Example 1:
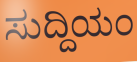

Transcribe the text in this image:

ಸುದ್ದಿಯಂ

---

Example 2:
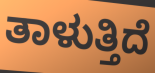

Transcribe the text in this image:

ತಾಳುತ್ತಿದೆ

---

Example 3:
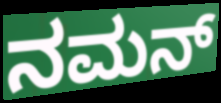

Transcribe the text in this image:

ನಮನ್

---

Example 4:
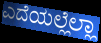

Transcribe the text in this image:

ಎದೆಯಲ್ಲೆಲ್ಲಾ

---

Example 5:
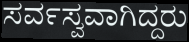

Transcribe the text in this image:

ಸರ್ವಸ್ವವಾಗಿದ್ದರು